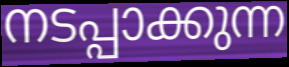
നടപ്പാക്കുന്ന